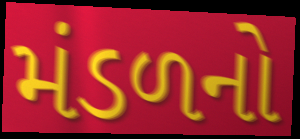
મંડળનો